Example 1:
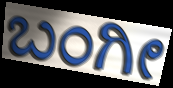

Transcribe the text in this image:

ಬಂಗೀ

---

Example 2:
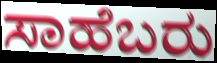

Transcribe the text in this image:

ಸಾಹೆಬರು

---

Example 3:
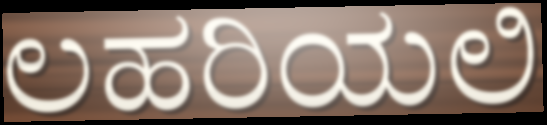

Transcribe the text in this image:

ಲಹರಿಯಲಿ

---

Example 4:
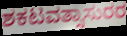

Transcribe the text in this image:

ಶಕಟವತ್ಸಾಸುರರ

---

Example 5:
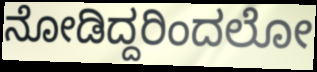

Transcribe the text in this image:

ನೋಡಿದ್ದರಿಂದಲೋ